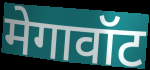
मेगावॉट